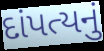
દાંપત્યનું